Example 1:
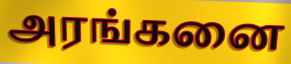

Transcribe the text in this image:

அரங்கனை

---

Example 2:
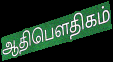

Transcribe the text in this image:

ஆதிபௌதிகம்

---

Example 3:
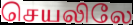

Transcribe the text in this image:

செயலிலே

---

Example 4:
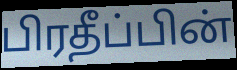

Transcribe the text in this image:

பிரதீப்பின்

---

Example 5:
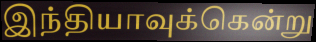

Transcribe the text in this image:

இந்தியாவுக்கென்று